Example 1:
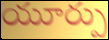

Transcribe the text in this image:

యూర్పు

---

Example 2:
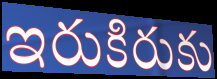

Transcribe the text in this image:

ఇరుకిరుకు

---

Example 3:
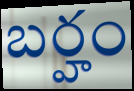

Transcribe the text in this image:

బర్హం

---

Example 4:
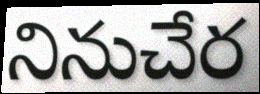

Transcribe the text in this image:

నినుచేర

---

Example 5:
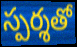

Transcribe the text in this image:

స్పర్శతో